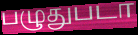
பழுதுபடா